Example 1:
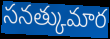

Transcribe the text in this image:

సనత్కుమార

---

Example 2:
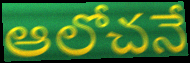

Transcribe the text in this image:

ఆలోచనే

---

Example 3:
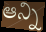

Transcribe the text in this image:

ఆన్ని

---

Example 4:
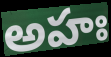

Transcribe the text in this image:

అహః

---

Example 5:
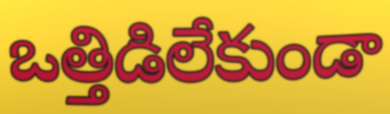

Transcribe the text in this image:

ఒత్తిడిలేకుండా